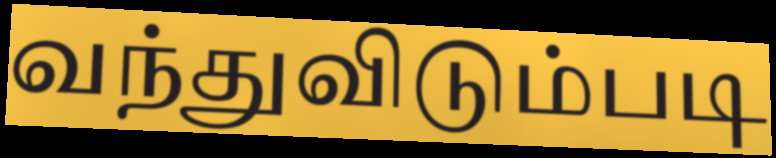
வந்துவிடும்படி